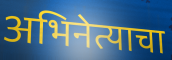
अभिनेत्याचा